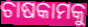
ଚାଷକାମକୁ